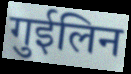
गुईलिन